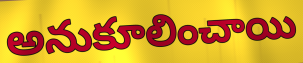
అనుకూలించాయి